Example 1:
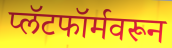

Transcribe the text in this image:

प्लॅटफॉर्मवरून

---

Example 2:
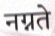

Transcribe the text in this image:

नग्नते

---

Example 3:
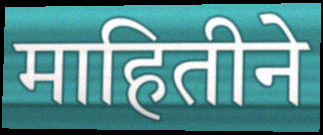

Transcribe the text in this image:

माहितीने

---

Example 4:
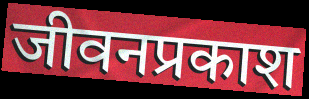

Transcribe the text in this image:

जीवनप्रकाश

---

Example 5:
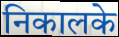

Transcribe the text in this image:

निकालके